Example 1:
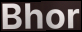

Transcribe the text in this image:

Bhor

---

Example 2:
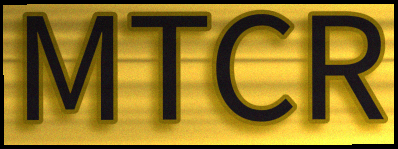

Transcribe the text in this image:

MTCR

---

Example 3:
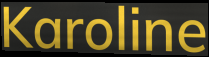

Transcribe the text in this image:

Karoline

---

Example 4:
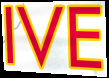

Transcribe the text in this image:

IVE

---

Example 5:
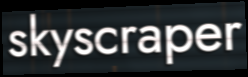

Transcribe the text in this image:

skyscraper